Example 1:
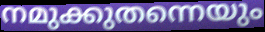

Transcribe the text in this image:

നമുക്കുതന്നെയും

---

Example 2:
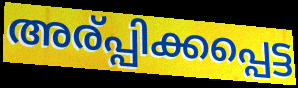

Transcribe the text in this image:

അര്പ്പിക്കപ്പെട്ട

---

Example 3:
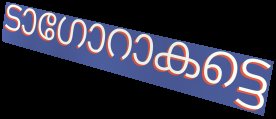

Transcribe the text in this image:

ടാഗോറാകട്ടെ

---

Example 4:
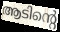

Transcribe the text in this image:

ആടിന്റെ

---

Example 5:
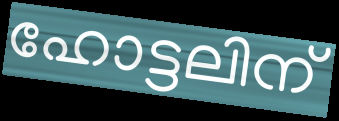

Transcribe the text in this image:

ഹോട്ടലിന്